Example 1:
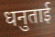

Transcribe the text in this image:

धनुताई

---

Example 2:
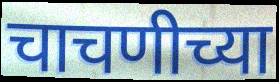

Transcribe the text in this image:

चाचणीच्या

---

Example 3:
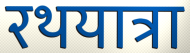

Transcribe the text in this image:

रथयात्रा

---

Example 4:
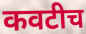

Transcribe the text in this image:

कवटीच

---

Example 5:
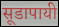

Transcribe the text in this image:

सूडापायी